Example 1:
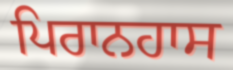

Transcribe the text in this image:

ਪਿਰਾਨਹਾਸ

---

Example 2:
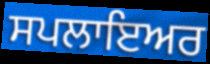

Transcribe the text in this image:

ਸਪਲਾਇਅਰ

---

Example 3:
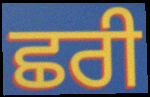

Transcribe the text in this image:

ਛਰੀ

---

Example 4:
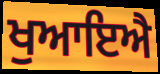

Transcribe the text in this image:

ਖੁਆਇਐ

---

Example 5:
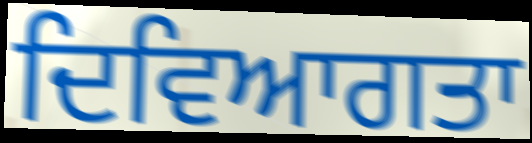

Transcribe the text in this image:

ਦਿਵਿਆਗਤਾ